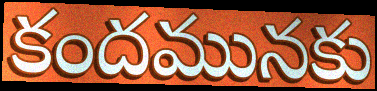
కందమునకు